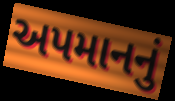
અપમાનનું